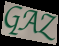
GAZ